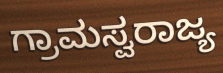
ಗ್ರಾಮಸ್ವರಾಜ್ಯ